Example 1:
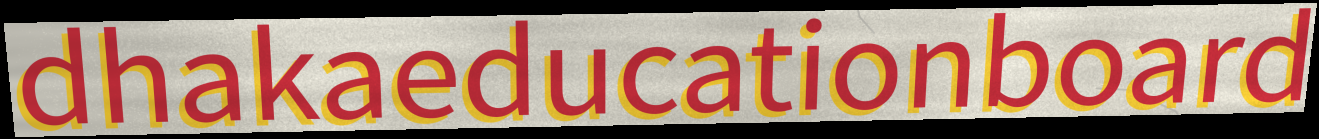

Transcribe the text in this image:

dhakaeducationboard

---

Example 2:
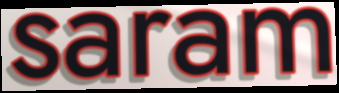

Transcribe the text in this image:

saram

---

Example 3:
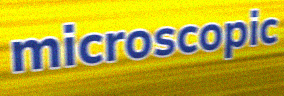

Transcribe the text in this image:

microscopic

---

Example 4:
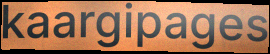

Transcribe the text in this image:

kaargipages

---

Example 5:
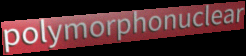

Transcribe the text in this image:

polymorphonuclear